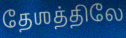
தேஶத்திலே